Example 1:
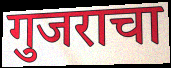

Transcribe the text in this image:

गुजराचा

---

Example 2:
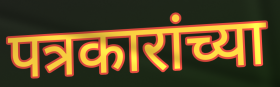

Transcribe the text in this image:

पत्रकारांच्या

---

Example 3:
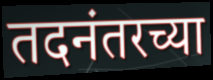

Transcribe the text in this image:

तदनंतरच्या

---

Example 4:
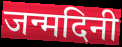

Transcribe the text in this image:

जन्मदिनी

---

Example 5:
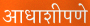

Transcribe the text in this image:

आधाशीपणे